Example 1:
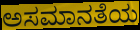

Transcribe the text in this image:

ಅಸಮಾನತೆಯ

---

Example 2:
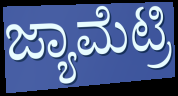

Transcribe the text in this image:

ಜ್ಯಾಮೆಟ್ರಿ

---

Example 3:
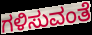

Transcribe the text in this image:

ಗಳಿಸುವಂತೆ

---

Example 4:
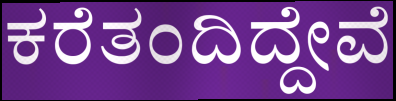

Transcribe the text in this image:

ಕರೆತಂದಿದ್ದೇವೆ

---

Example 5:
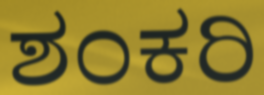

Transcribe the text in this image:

ಶಂಕರಿ